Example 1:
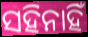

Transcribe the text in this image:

ସହିନାହିଁ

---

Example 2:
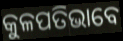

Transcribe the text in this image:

କୁଳପତିଭାବେ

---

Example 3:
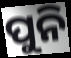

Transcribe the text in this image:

ପୁନି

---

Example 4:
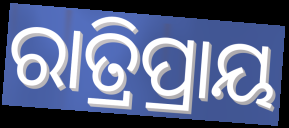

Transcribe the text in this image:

ରାତ୍ରିପ୍ରାୟ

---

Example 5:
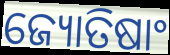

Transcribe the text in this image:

ଜ୍ୟୋତିଷାଂ